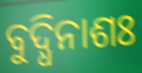
ବୁଦ୍ଧିନାଶଃ